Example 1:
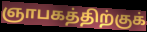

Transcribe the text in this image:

ஞாபகத்திற்குக்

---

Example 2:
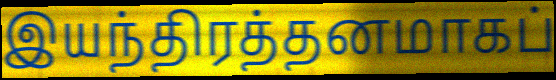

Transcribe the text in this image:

இயந்திரத்தனமாகப்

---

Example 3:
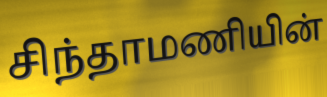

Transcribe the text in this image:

சிந்தாமணியின்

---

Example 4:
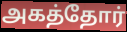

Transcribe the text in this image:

அகத்தோர்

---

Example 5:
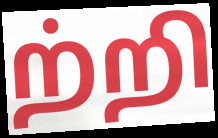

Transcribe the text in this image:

ற்றி